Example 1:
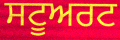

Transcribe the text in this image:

ਸਟੂਅਰਟ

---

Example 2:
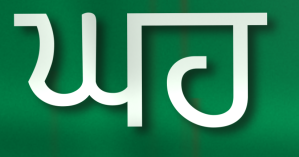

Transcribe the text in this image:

ਘਹ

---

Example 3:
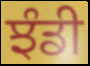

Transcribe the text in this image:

ਝੰਡੀ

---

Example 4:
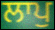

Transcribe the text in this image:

ਲਾਪੁ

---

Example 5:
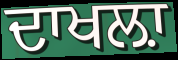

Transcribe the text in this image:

ਦਾਖਲ਼ਾ